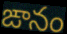
ఙానం